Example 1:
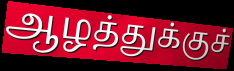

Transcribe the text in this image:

ஆழத்துக்குச்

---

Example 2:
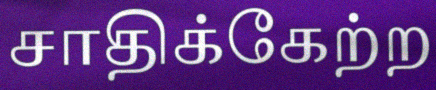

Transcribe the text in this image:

சாதிக்கேற்ற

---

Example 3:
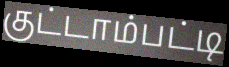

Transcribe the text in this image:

குட்டாம்பட்டி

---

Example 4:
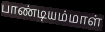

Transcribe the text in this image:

பாண்டியம்மாள்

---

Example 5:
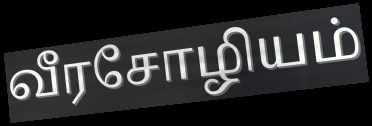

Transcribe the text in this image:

வீரசோழியம்